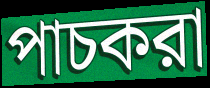
পাচকরা